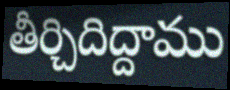
తీర్చిదిద్దాము